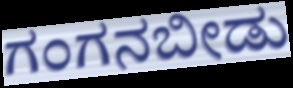
ಗಂಗನಬೀಡು